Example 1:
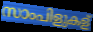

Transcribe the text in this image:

സാംപിളുകള്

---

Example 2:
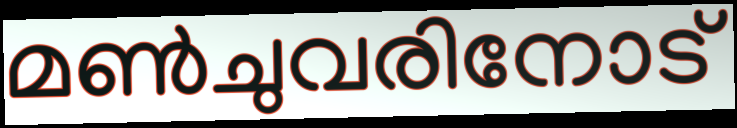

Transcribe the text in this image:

മൺചുവരിനോട്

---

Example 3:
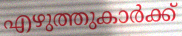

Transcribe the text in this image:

എഴുത്തുകാർക്ക്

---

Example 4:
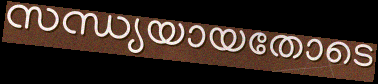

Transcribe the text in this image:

സന്ധ്യയായതോടെ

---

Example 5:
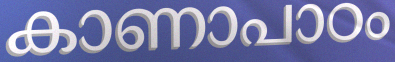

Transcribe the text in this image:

കാണാപാഠം